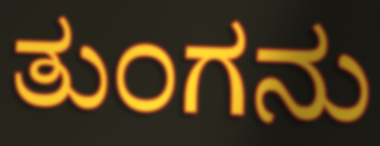
ತುಂಗನು